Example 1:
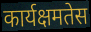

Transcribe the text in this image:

कार्यक्षमतेस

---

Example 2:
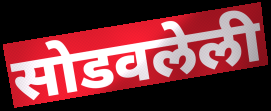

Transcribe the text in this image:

सोडवलेली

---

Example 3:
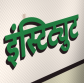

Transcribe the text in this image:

इंस्टिट्युट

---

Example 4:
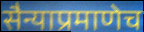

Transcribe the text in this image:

सैन्याप्रमाणेच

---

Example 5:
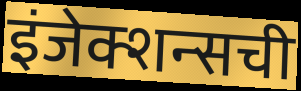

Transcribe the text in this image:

इंजेक्शन्सची